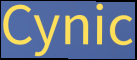
Cynic